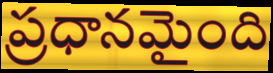
ప్రధానమైంది